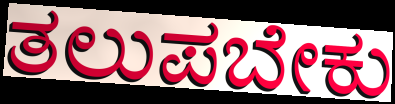
ತಲುಪಬೇಕು